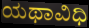
ಯಥಾವಿಧಿ